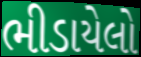
ભીડાયેલો